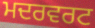
ਮਦਰਵਰਟ